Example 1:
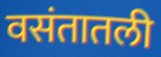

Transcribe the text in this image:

वसंतातली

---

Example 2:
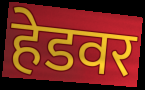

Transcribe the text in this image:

हेडवर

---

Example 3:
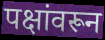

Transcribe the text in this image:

पक्षांवरून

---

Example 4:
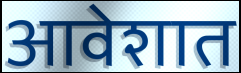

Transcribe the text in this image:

आवेशात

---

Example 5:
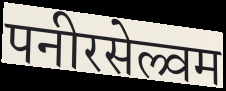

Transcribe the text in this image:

पनीरसेल्वम